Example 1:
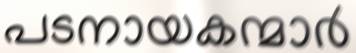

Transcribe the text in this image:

പടനായകന്മാർ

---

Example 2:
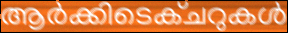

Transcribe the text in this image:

ആർക്കിടെക്ചറുകൾ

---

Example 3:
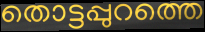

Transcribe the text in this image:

തൊട്ടപ്പുറത്തെ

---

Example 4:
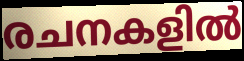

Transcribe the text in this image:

രചനകളിൽ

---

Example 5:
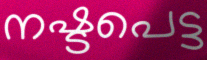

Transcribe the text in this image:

നഷ്ടപെട്ട